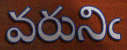
వరునిఁ